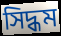
সিদ্ধম